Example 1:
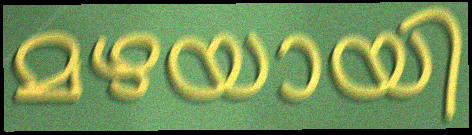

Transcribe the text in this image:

മഴയായി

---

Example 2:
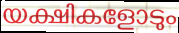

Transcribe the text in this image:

യക്ഷികളോടും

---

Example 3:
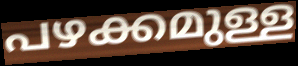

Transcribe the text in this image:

പഴക്കമുള്ള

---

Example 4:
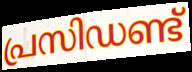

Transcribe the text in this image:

പ്രസിഡണ്ട്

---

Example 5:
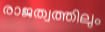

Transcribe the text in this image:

രാജത്വത്തിലും